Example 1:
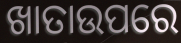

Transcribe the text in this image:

ଖାତାଉପରେ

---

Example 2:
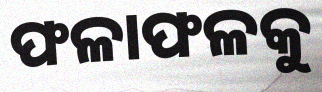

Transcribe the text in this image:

ଫଳାଫଳକୁ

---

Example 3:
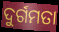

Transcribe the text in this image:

ଦୁର୍ଗମତା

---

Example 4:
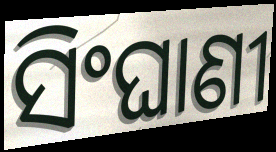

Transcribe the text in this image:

ସିଂଘାଣୀ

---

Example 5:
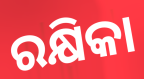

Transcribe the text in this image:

ରକ୍ଷିକା